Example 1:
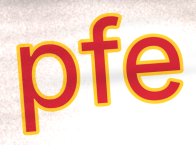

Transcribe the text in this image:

pfe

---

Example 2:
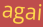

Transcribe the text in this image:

agai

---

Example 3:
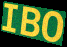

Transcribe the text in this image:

IBO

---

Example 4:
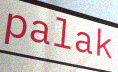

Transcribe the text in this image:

palak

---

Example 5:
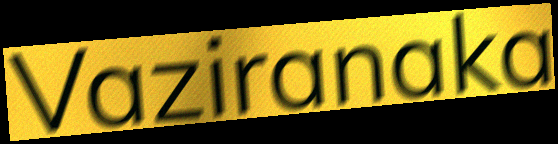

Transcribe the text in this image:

Vaziranaka